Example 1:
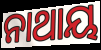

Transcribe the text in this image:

ନାଥାୟ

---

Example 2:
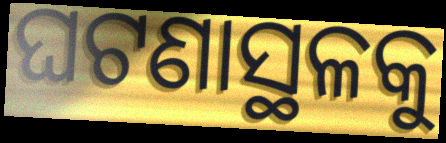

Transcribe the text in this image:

ଘଟଣାସ୍ଥଳକୁ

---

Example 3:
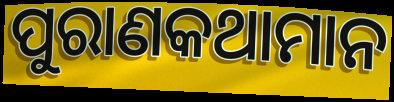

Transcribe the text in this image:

ପୁରାଣକଥାମାନ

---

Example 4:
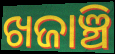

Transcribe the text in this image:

ଖଜାଞ୍ଚି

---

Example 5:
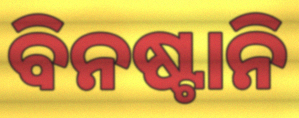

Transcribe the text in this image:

ବିନଷ୍ଟାନି